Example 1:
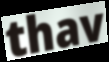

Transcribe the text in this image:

thav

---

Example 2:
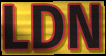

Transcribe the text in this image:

LDN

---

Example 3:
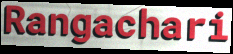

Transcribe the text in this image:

Rangachari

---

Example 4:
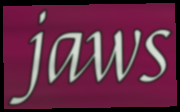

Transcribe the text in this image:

jaws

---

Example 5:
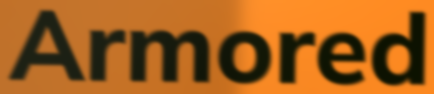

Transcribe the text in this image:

Armored